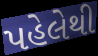
પહેલેથી